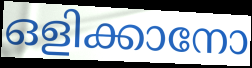
ഒളിക്കാനോ